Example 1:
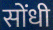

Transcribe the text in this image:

सोंधी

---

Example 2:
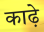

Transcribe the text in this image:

काढ़े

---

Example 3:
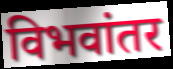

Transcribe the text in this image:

विभवांतर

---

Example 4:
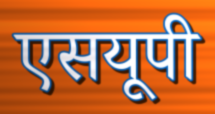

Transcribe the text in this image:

एसयूपी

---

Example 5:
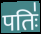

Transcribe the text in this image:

पतिः॑